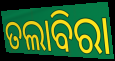
ତଲାବିରା